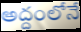
అద్దంలోనే